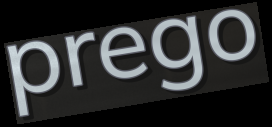
prego